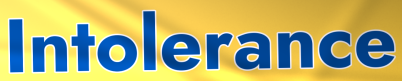
Intolerance